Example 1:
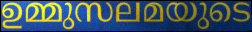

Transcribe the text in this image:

ഉമ്മുസലമയുടെ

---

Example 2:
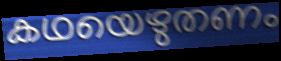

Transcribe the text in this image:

കഥയെഴുതണം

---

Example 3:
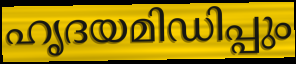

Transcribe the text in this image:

ഹൃദയമിഡിപ്പും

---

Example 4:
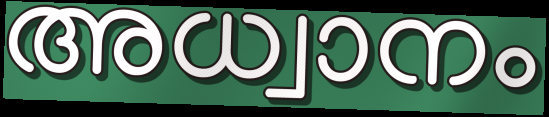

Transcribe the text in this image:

അധ്വാനം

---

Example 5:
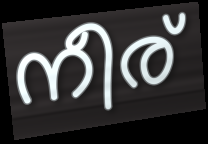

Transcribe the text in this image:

നീര്